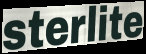
sterlite